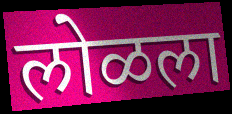
लोळला